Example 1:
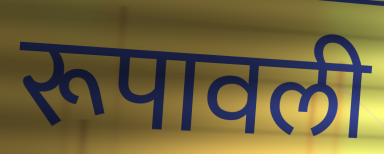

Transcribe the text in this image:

रूपावली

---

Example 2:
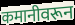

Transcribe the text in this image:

कमानीवरून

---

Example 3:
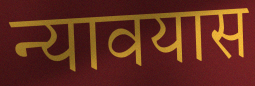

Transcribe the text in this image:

न्यावयास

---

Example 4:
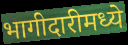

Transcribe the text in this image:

भागीदारीमध्ये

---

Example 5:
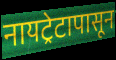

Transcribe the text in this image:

नायट्रेटापासून